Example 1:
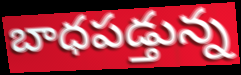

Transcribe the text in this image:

బాధపడ్తున్న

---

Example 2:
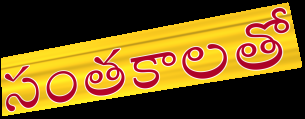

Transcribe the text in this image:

సంతకాలతో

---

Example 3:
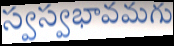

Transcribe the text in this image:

స్వస్వభావమగు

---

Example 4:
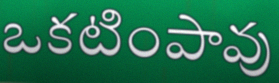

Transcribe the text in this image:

ఒకటింపావు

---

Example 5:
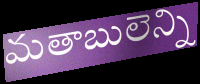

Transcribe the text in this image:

మతాబులెన్ని